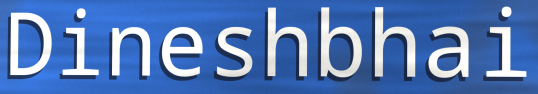
Dineshbhai